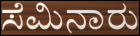
ಸೆಮಿನಾರು